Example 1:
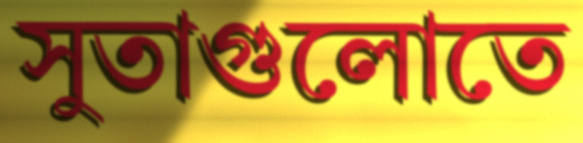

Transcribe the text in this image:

সুতাগুলোতে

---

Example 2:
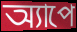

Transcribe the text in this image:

অ্যাপে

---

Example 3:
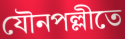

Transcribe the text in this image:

যৌনপল্লীতে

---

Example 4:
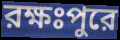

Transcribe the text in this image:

রক্ষঃপুরে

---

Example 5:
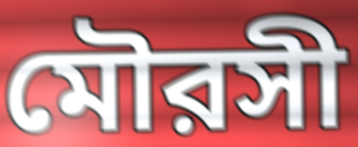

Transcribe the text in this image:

মৌরসী